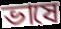
ভাষে